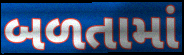
બળતામાં